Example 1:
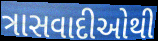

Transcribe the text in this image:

ત્રાસવાદીઓથી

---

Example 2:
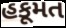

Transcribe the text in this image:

હકૂમત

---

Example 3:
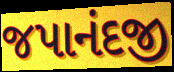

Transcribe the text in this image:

જપાનંદજી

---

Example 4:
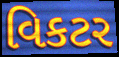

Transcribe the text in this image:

વિકટર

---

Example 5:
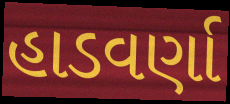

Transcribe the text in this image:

હાડવર્ણા